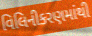
વિલિનીકરણમાંથી